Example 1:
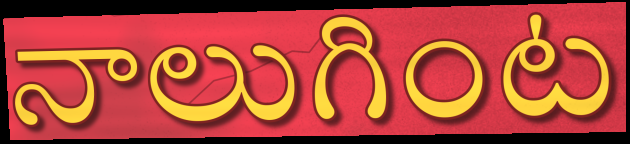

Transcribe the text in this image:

నాలుగింట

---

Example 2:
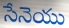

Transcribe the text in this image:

సేనెయు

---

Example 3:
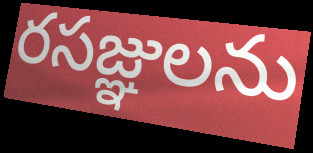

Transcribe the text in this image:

రసజ్ఞులను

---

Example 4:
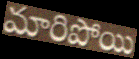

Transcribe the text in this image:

మారిపోయి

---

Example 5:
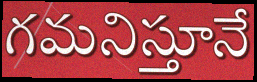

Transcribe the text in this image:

గమనిస్తూనే